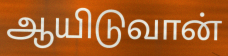
ஆயிடுவான்